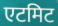
एटमिट